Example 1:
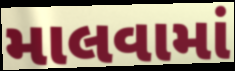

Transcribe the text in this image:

માલવામાં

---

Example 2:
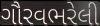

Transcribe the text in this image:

ગૌરવભરેલી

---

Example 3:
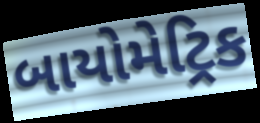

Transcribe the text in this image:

બાયોમેટ્રિક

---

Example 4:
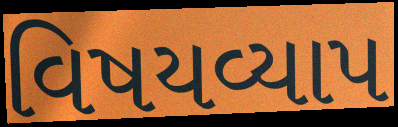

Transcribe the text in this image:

વિષયવ્યાપ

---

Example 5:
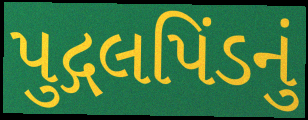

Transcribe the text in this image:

પુદ્ગલપિંડનું